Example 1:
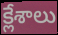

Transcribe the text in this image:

క్లేశాలు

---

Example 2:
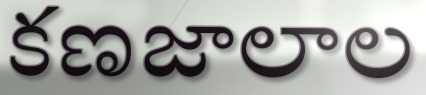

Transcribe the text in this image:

కణజాలాల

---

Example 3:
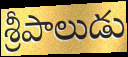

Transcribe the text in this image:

శ్రీపాలుడు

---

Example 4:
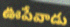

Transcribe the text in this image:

ఊపేవాడు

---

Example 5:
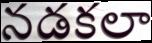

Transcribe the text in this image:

నడకలా